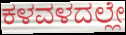
ಕಳವಳದಲ್ಲೇ